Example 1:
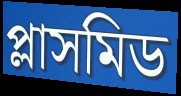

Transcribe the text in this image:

প্লাসমিড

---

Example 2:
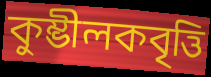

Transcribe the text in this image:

কুম্ভীলকবৃত্তি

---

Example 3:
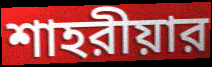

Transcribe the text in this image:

শাহরীয়ার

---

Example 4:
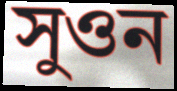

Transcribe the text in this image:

সুওন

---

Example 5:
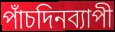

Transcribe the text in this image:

পাঁচদিনব্যাপী